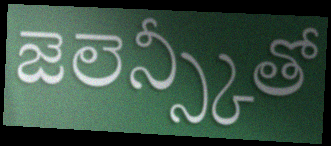
జెలెన్స్కీతో